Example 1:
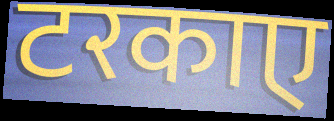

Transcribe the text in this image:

टरकाए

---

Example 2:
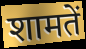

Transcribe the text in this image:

शामतें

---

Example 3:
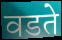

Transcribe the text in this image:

वडते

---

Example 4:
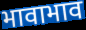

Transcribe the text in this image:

भावाभाव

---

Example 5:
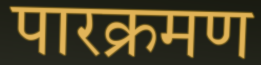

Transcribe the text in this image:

पारक्रमण